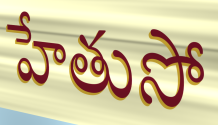
హేతుసో